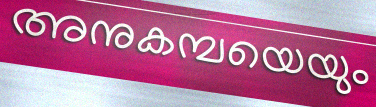
അനുകമ്പയെയും